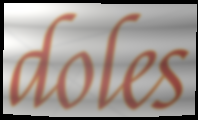
doles